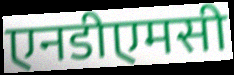
एनडीएमसी